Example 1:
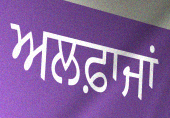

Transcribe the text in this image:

ਅਲਫ਼ਾਜਾਂ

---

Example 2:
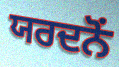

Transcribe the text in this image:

ਯਰਦਨੋਂ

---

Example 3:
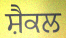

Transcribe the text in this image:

ਸ਼ੈਕਲ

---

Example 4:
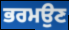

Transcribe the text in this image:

ਭਰਮਉਣ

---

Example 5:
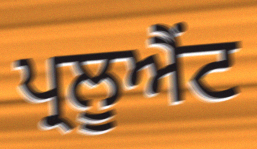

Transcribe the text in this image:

ਪ੍ਰਲੂਐਂਟ